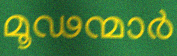
മൂഢന്മാർ